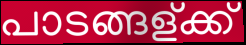
പാടങ്ങള്ക്ക്